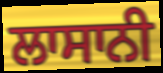
ਲਾਸਾਨੀ